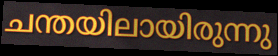
ചന്തയിലായിരുന്നു